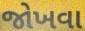
જોખવા